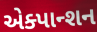
એક્પાન્શન